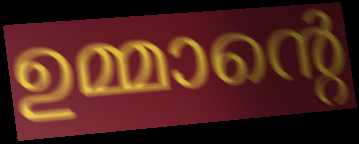
ഉമ്മാന്റെ